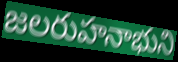
జలరుహనాభుని